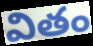
వితం